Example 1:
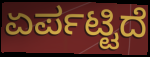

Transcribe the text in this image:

ಏರ್ಪಟ್ಟಿದೆ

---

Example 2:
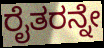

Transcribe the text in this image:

ರೈತರನ್ನೇ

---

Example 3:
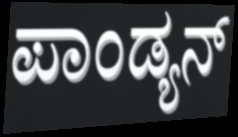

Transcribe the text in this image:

ಪಾಂಡ್ಯನ್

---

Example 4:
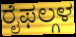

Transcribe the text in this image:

ರೈಫಲ್ಗಳ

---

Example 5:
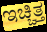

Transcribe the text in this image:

ಇಚ್ಚಿತ್ತ